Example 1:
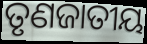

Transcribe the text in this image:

ତୃଣଜାତୀୟ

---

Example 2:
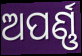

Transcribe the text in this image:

ଅପର୍ଣ୍ଣ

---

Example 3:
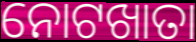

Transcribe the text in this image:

ନୋଟଖାତା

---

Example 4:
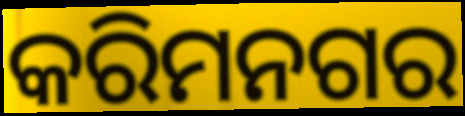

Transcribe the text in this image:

କରିମନଗର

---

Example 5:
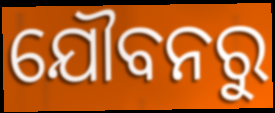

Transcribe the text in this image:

ଯୌବନରୁ